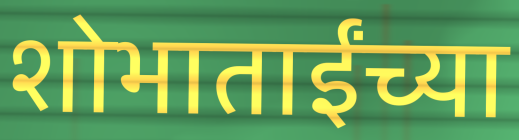
शोभाताईंच्या